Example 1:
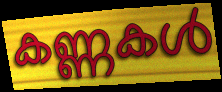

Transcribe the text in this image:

കണ്ണകൾ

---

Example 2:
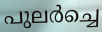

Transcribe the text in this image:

പുലർച്ചെ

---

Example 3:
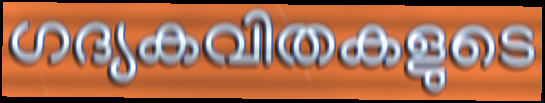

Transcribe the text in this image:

ഗദ്യകവിതകളുടെ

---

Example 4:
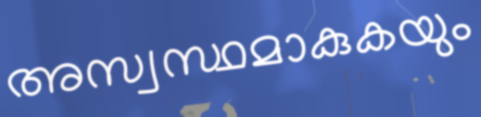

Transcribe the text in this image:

അസ്വസ്ഥമാകുകയും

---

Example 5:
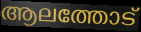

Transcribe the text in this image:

ആലത്തോട്